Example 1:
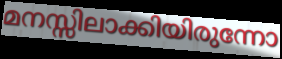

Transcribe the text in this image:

മനസ്സിലാക്കിയിരുന്നോ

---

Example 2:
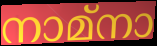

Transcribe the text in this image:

നാമ്നാ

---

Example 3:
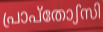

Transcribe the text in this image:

പ്രാപ്തോഽസി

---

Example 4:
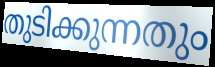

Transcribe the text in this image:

തുടിക്കുന്നതും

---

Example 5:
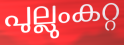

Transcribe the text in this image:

പുല്ലുംകറ്റ